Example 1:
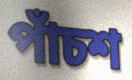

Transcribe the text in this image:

পাঁচশ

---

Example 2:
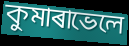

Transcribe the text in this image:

কুমাৰাভেলে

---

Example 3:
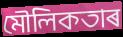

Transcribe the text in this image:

মৌলিকতাৰ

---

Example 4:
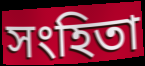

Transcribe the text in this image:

সংহিতা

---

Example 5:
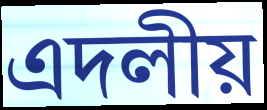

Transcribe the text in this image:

এদলীয়